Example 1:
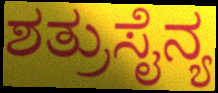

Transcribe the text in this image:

ಶತ್ರುಸೈನ್ಯ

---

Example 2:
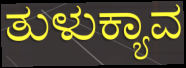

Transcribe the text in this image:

ತುಳುಕ್ಯಾವ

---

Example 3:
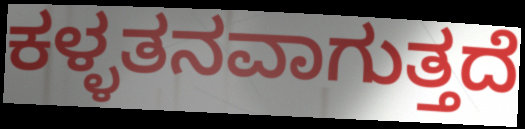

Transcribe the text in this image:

ಕಳ್ಳತನವಾಗುತ್ತದೆ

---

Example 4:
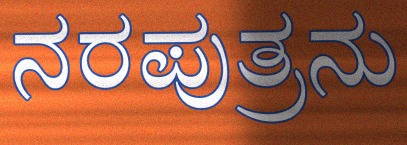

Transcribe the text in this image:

ನರಪುತ್ರನು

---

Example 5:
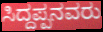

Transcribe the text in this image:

ಸಿದ್ದಪ್ಪನವರು